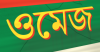
ওমেজ